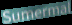
Sumermal